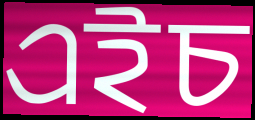
এইচ